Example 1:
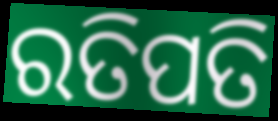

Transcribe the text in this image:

ରତିପତି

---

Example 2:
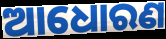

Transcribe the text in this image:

ଆଧୋରଣ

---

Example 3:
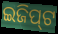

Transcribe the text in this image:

ଇଜିପ୍‌ଟ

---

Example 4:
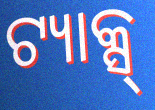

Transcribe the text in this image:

ଟ୍ୟାକ୍ସ୍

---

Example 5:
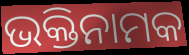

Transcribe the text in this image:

ଭକ୍ତିନାମକ